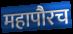
महापौरच